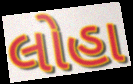
લોહા